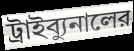
ট্রাইব্যুনালের